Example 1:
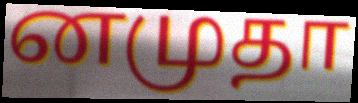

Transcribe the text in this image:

னமுதா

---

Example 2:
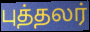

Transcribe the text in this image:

புத்தலர்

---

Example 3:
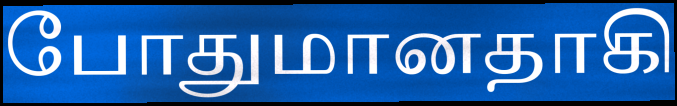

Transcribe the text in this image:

போதுமானதாகி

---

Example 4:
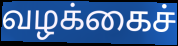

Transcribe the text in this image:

வழக்கைச்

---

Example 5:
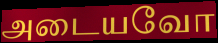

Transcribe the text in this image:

அடையவோ